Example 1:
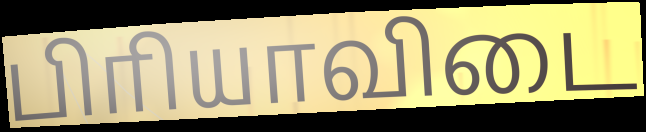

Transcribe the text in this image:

பிரியாவிடை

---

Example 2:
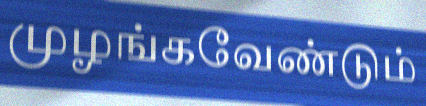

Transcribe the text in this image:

முழங்கவேண்டும்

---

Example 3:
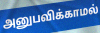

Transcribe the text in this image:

அனுபவிக்காமல்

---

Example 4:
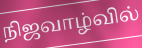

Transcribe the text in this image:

நிஜவாழ்வில்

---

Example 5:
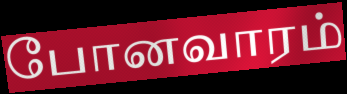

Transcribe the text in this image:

போனவாரம்